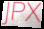
JPX